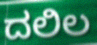
ದಲಿಲ